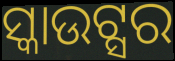
ସ୍କାଉଟ୍ସର